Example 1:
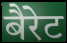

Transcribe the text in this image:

बैरेट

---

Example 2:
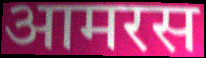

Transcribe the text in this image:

आमरस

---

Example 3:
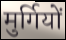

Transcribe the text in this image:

मुर्गियों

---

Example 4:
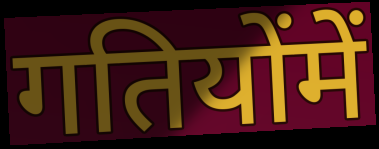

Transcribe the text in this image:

गतियोंमें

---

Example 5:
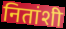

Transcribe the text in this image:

नितांशी